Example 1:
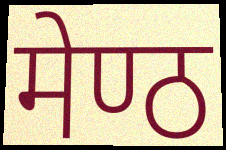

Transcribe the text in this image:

मेण्ठ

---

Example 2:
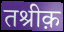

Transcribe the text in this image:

तश्रीक़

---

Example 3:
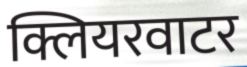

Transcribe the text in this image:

क्लियरवाटर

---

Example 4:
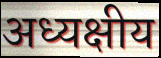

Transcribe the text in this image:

अध्यक्षीय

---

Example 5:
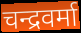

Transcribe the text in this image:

चन्द्रवर्मा